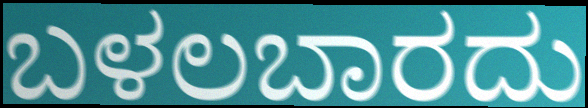
ಬಳಲಬಾರದು